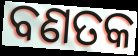
ବଣତକ